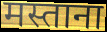
मस्ताना